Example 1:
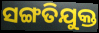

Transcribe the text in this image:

ସଙ୍ଗତିଯୁକ୍ତ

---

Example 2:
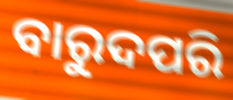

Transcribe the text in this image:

ବାରୁଦପରି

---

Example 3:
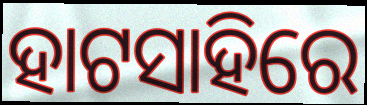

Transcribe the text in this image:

ହାଟସାହିରେ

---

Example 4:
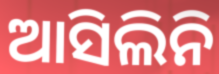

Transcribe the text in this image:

ଆସିଲିନି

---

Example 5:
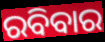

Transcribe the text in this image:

ରବିବାର